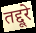
तद्दूरे